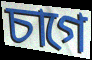
চাগে